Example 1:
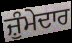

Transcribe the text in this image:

ਜ਼ੁੰਮੇਦਾਰ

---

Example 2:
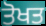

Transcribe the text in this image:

ਤੋਖਤ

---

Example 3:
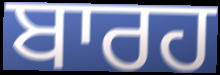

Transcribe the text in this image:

ਬਾਰਹ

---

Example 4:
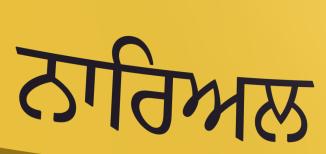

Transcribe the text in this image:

ਨਾਰਿਅਲ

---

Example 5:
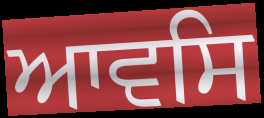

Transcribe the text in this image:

ਆਵਸਿ